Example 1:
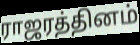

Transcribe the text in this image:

ராஜரத்தினம்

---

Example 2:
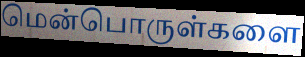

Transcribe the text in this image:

மென்பொருள்களை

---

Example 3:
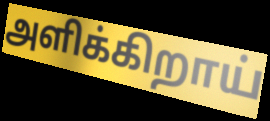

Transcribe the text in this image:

அளிக்கிறாய்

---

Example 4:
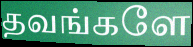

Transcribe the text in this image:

தவங்களே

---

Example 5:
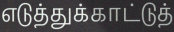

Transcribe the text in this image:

எடுத்துக்காட்டுத்